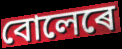
বোলেৰে